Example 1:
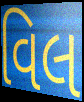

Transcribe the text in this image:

વિલ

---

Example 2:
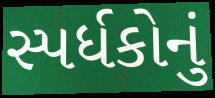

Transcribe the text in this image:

સ્પર્ધકોનું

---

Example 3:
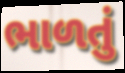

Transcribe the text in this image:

ભાળતું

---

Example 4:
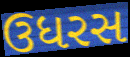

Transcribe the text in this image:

ઉધરસ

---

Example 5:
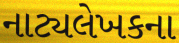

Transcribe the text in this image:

નાટ્યલેખકના